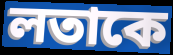
লতাকে